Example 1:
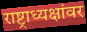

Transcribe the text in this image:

राष्ट्राध्यक्षांवर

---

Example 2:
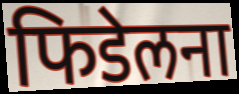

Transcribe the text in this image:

फिडेलना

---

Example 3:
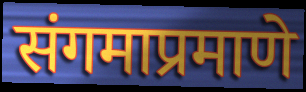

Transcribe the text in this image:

संगमाप्रमाणे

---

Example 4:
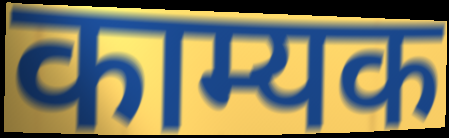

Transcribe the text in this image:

काम्यक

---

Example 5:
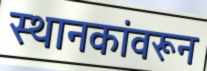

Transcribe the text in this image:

स्थानकांवरून